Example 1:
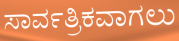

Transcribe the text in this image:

ಸಾರ್ವತ್ರಿಕವಾಗಲು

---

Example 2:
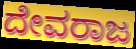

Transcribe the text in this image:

ದೇವರಾಜ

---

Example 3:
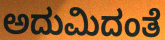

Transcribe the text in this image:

ಅದುಮಿದಂತೆ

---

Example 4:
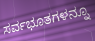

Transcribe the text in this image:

ಸರ್ವಭೂತಗಳನ್ನೂ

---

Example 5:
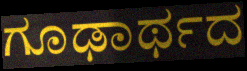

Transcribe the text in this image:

ಗೂಢಾರ್ಥದ